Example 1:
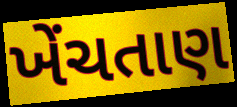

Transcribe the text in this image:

ખેંચતાણ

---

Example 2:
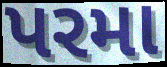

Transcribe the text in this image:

પરમા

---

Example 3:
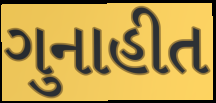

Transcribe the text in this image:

ગુનાહીત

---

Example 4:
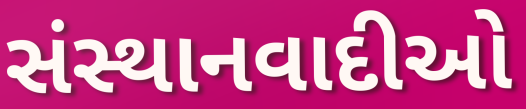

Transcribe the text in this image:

સંસ્થાનવાદીઓ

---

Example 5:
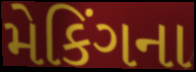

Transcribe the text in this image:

મેકિંગના